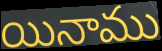
యినాము